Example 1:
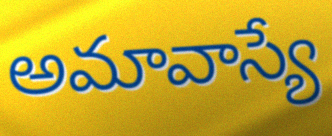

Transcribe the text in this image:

అమావాస్యే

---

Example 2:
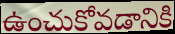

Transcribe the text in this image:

ఉంచుకోవడానికి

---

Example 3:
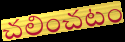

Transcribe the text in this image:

చలించటం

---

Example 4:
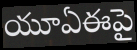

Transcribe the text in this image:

యూఏఈపై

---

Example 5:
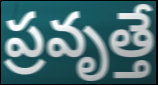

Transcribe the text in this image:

ప్రవృత్తే